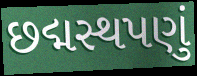
છદ્મસ્થપણું